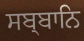
ਸਬ੍ਬਾਨਿ